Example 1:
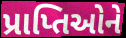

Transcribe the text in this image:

પ્રાપ્તિઓને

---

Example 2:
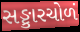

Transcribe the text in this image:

સઙ્કારચોળં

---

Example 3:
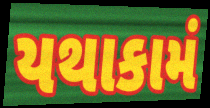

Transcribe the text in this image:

યથાકામં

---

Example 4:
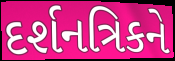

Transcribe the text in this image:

દર્શનત્રિકને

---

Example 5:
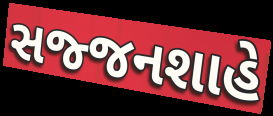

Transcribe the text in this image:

સજ્જનશાહે